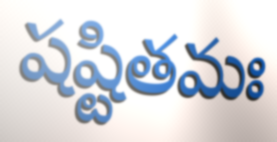
షష్టితమః